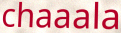
chaaala